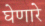
घेणारे